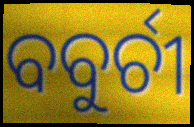
ବବୁର୍ଚୀ